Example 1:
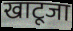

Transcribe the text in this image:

खाटूजा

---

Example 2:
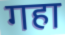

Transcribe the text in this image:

गहा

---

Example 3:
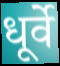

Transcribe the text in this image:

धूर्वे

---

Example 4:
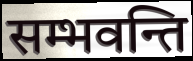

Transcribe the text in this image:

सम्भवन्ति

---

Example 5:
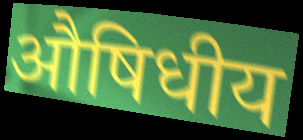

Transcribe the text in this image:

औषिधीय